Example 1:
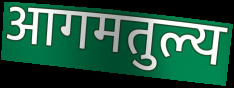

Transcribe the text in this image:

आगमतुल्य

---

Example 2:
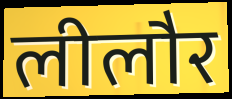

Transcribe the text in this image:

लीलौर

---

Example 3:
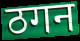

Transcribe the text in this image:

ठगन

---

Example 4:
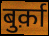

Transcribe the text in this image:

बुर्क़ा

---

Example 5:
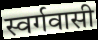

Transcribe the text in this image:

स्वर्गवासी